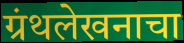
ग्रंथलेखनाचा